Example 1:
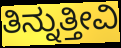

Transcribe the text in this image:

ತಿನ್ನುತ್ತೀವಿ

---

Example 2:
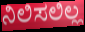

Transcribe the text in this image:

ನಿಲಿಸಲಿಲ್ಲ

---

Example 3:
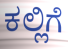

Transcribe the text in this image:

ಕಲ್ಲಿಗೆ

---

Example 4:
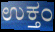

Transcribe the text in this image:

ಉಕ್ತಂ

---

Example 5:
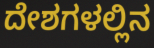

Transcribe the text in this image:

ದೇಶಗಳಲ್ಲಿನ